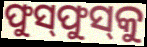
ଫୁସ୍‌ଫୁସ୍‌କୁ